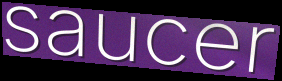
saucer